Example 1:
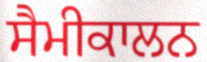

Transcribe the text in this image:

ਸੈਮੀਕਾਲਨ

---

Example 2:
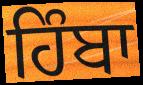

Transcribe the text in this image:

ਹਿੰਬਾ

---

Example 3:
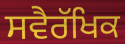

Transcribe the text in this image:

ਸਵੈਰੱਖਿਕ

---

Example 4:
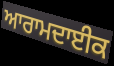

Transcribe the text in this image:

ਆਰਾਮਦਾਈਕ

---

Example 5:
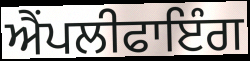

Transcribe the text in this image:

ਐਂਪਲੀਫਾਇੰਗ